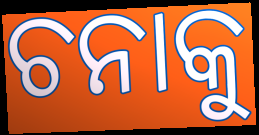
ଚନାକୁ